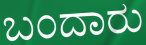
ಬಂದಾರು